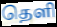
தெளி